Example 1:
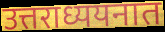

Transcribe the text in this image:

उत्तराध्ययनात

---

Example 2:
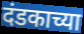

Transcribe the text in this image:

दंडकाच्या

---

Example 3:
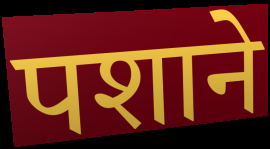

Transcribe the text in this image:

पशाने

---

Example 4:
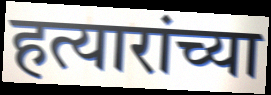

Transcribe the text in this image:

हत्यारांच्या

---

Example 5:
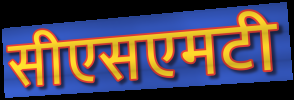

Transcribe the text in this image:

सीएसएमटी